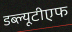
डब्ल्यूटीएफ